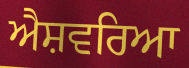
ਐਸ਼ਵਰਿਆ